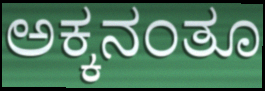
ಅಕ್ಕನಂತೂ